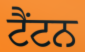
ਟੈਂਟਨ